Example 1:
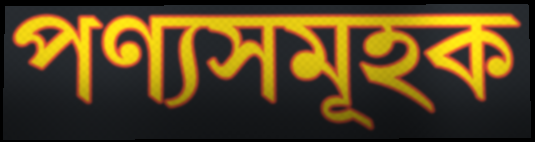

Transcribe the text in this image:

পণ্যসমূহক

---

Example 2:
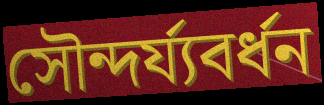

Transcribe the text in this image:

সৌন্দৰ্য্যবৰ্ধন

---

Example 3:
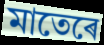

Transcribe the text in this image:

মাতেৰে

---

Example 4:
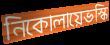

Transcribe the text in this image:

নিকোলায়েভস্কি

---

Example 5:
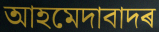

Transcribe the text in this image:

আহমেদাবাদৰ